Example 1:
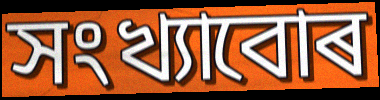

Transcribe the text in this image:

সংখ্যাবোৰ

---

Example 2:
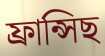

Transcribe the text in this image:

ফ্ৰান্সিছ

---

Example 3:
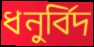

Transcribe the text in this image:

ধনুৰ্বিদ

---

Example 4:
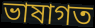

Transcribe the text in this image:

ভাষাগত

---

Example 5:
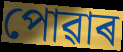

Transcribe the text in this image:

পোৱাৰ